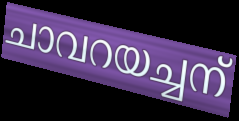
ചാവറയച്ചന്